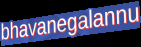
bhavanegalannu